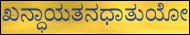
ಖನ್ಧಾಯತನಧಾತುಯೋ